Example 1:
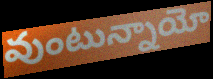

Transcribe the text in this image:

వుంటున్నాయో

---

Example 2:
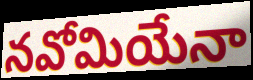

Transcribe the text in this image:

నవోమియేనా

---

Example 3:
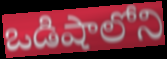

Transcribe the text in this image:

ఒడిషాలోని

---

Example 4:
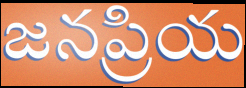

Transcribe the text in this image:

జనప్రియ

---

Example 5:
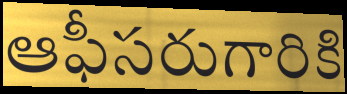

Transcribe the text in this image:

ఆఫీసరుగారికి